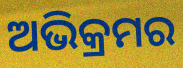
ଅଭିକ୍ରମର